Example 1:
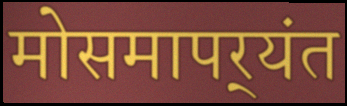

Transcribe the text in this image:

मोसमापर्यंत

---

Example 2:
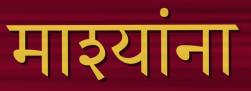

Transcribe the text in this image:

माश्यांना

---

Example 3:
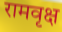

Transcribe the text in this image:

रामवृक्ष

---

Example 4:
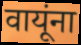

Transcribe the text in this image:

वायूंना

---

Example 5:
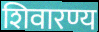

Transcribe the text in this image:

शिवारण्य